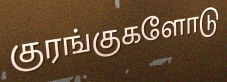
குரங்குகளோடு